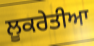
ਲੂਕਰੇਤੀਆ